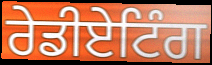
ਰੇਡੀਏਟਿੰਗ